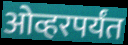
ओव्हरपर्यंत